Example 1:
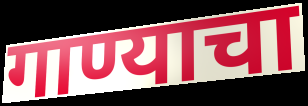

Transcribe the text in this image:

गाण्याचा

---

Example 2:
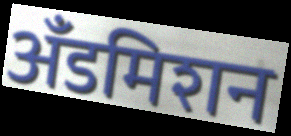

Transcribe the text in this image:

अँडमिशन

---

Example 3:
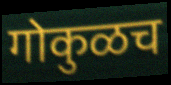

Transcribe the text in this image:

गोकुळच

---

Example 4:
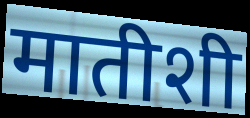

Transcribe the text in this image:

मातीशी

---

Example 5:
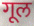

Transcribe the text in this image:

गूल